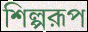
শিল্পরূপ